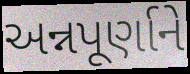
અન્નપૂર્ણાને